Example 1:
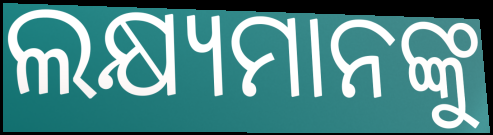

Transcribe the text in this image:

ଲକ୍ଷ୍ୟମାନଙ୍କୁ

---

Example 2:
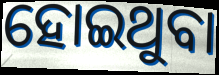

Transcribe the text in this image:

ହୋଇଥୁବା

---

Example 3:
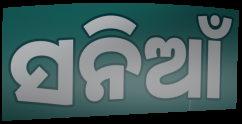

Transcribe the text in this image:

ସନିଆଁ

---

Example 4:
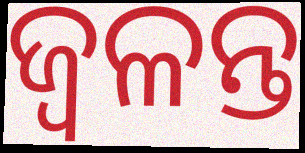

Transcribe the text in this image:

ଜ୍ଵଳନ୍ତ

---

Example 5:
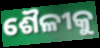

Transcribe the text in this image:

ଶୈଳୀକୁ